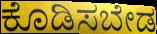
ಕೊಡಿಸಬೇಡ